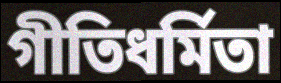
গীতিধর্মিতা